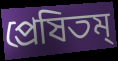
প্রেষিতম্